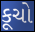
કૂચો